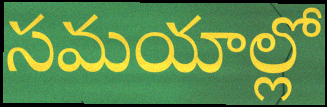
సమయాల్లో